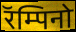
रॅम्पिनो